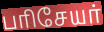
பரிசேயர்